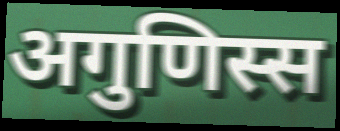
अगुणिस्स